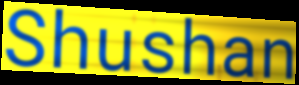
Shushan